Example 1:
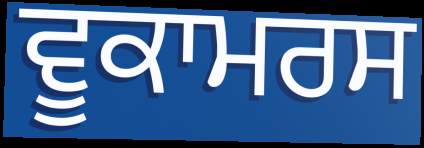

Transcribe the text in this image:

ਵੂਕਾਮਰਸ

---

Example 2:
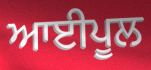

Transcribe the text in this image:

ਆਈਪੂਲ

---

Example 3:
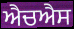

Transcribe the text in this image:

ਐਚਐਸ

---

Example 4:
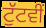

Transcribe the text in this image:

ਟੁੱਟਵੀਂ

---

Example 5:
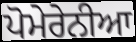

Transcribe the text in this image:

ਪੋਮੇਰੇਨੀਆ